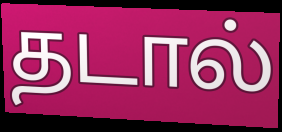
தடால்